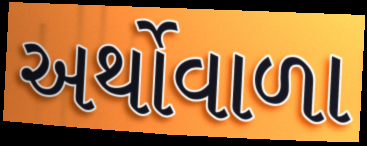
અર્થોવાળા